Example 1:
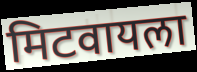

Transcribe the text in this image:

मिटवायला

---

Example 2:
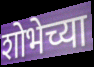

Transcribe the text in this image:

शोभेच्या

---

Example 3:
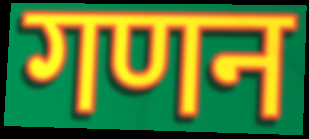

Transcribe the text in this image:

गणन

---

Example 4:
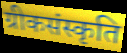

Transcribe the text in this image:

ग्रीकसंस्कृति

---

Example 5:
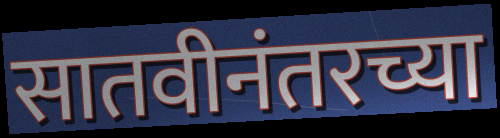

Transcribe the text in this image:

सातवीनंतरच्या